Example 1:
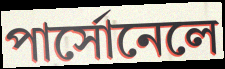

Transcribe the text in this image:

পার্সোনেলে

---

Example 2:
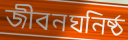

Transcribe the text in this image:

জীবনঘনিষ্ঠ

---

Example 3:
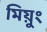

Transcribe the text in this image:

মিয়ুং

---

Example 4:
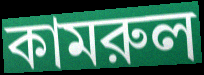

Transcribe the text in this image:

কামরুল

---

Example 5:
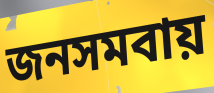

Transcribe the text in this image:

জনসমবায়